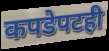
कपडेपटही